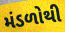
મંડળોથી